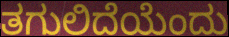
ತಗುಲಿದೆಯೆಂದು